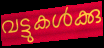
വട്ടുകൾക്കു